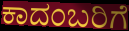
ಕಾದಂಬರಿಗೆ